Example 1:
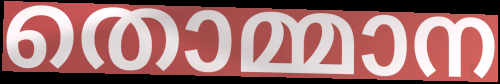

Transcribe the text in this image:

തൊമ്മാന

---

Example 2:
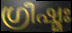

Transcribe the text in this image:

ഗ്രീഷ്മഃ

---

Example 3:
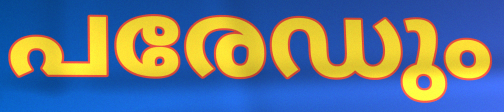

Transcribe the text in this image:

പരേഡും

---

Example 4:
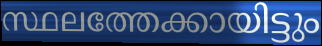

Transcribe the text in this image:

സ്ഥലത്തേക്കായിട്ടും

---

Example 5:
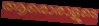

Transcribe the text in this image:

ആരൊരാളുടെ